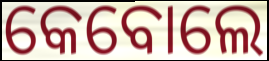
କେବୋଲେ